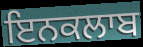
ਇਨਕਲਾਬ